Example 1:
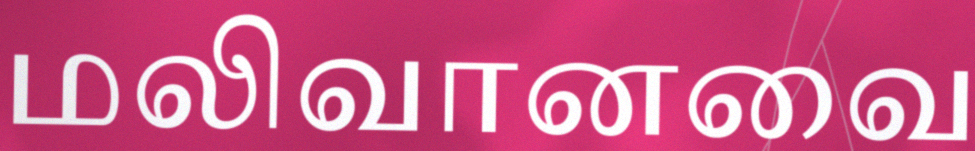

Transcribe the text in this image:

மலிவானவை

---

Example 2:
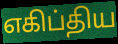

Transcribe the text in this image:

எகிப்திய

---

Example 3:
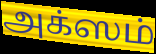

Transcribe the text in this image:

அக்ஸம்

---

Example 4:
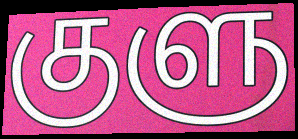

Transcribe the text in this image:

குளு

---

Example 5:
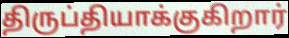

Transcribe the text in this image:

திருப்தியாக்குகிறார்